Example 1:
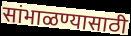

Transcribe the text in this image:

सांभाळण्यासाठी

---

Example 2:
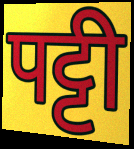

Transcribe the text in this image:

पट्टी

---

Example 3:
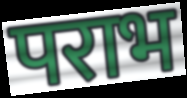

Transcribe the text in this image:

पराभ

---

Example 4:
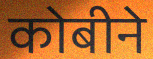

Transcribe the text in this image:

कोबीने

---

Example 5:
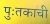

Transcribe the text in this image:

पुःतकाची